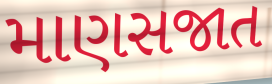
માણસજાત